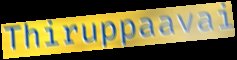
Thiruppaavai